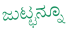
ಜುಟ್ಟನ್ನೂ